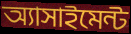
অ্যাসাইমেন্ট